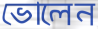
ভোলেন